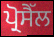
ਪ੍ਰੋਸੈੱਲ